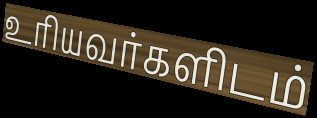
உரியவர்களிடம்